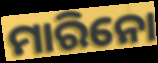
ମାରିନୋ